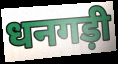
धनगड़ी